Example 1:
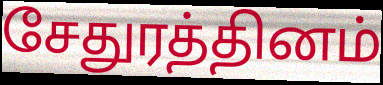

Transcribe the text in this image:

சேதுரத்தினம்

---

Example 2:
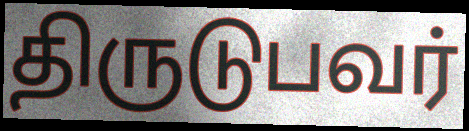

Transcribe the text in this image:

திருடுபவர்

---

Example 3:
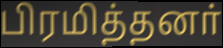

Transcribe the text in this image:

பிரமித்தனர்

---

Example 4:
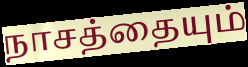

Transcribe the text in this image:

நாசத்தையும்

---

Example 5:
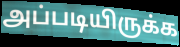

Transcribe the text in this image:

அப்படியிருக்க